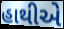
હાથીએ